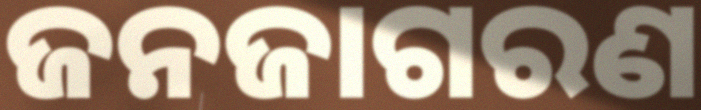
ଜନଜାଗରଣ